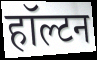
हॉल्टन